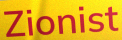
Zionist